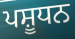
ਪਸ਼ੂਧਨ